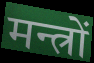
मन्त्रों